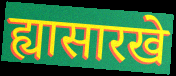
ह्यासारखे